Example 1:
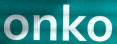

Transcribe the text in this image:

onko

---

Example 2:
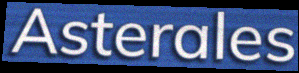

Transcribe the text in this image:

Asterales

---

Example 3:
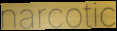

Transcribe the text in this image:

narcotic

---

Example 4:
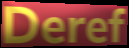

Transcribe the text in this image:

Deref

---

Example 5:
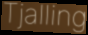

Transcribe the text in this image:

Tjalling